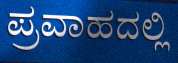
ಪ್ರವಾಹದಲ್ಲಿ